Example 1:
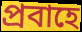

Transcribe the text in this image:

প্রবাহে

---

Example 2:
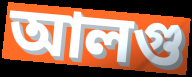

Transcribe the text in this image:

আলগু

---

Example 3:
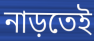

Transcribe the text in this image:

নাড়তেই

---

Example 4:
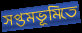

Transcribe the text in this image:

সপ্তমভূমিতে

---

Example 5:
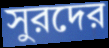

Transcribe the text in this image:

সুরদের